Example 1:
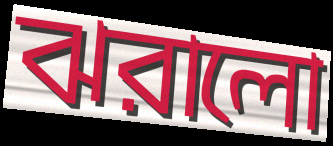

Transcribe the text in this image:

ঝরালো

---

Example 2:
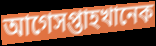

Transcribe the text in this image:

আগেসপ্তাহখানেক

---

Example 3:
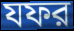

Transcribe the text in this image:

যফর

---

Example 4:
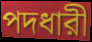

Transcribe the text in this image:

পদধারী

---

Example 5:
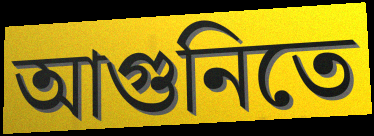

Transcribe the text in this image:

আগুনিতে